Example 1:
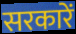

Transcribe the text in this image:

सरकारें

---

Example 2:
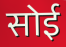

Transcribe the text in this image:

सोई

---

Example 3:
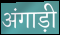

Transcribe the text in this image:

अंगाड़ी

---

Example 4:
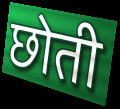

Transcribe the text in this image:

छोती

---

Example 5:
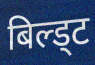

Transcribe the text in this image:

बिल्ड्ट